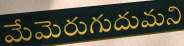
మేమెరుగుదుమని